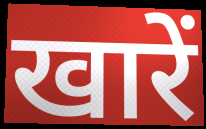
खारें